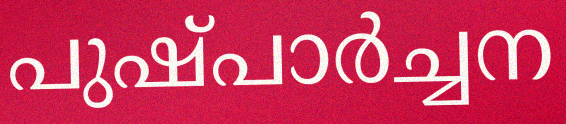
പുഷ്പാർച്ചന